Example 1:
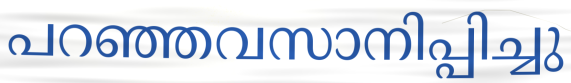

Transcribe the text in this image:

പറഞ്ഞവസാനിപ്പിച്ചു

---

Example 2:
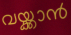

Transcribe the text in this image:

വയ്ക്കാൻ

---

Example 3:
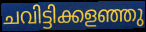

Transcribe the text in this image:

ചവിട്ടിക്കളഞ്ഞു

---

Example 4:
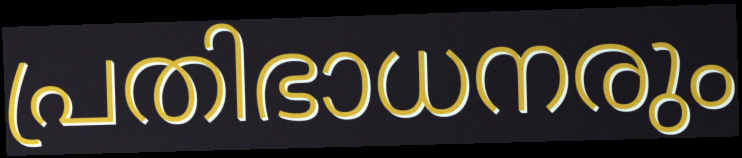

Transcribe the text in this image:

പ്രതിഭാധനരും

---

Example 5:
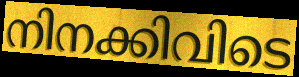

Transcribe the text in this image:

നിനക്കിവിടെ